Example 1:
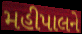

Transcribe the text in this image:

મહીપાલને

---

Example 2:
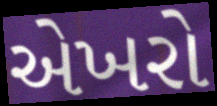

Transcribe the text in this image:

એખરો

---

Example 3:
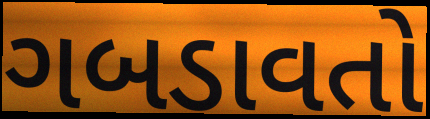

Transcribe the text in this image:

ગબડાવતો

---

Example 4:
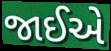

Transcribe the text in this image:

જાઈએ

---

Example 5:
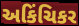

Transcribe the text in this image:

અકિંચિકર